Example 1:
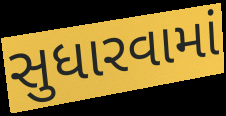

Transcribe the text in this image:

સુધારવામાં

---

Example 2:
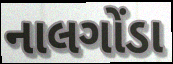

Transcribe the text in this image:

નાલગોંડા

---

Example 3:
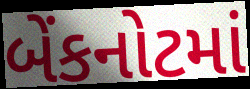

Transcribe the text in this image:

બેંકનોટમાં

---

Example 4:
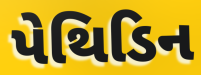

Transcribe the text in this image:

પેથિડિન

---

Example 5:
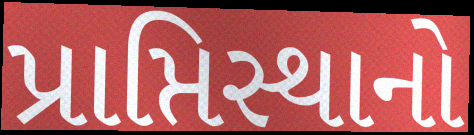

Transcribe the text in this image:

પ્રાપ્તિસ્થાનો